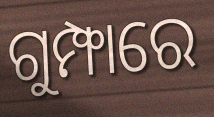
ଗୁମ୍ଫାରେ